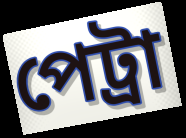
পেট্রা